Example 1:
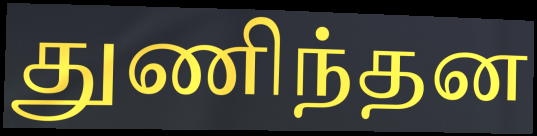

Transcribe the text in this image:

துணிந்தன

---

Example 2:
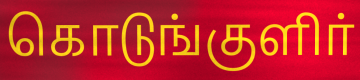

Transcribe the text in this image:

கொடுங்குளிர்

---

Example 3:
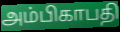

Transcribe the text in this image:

அம்பிகாபதி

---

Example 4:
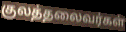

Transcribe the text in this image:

குலத்தலைவர்கள்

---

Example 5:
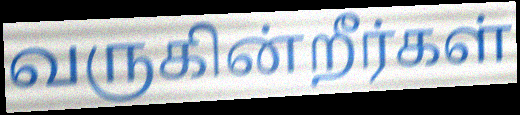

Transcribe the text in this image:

வருகின்றீர்கள்